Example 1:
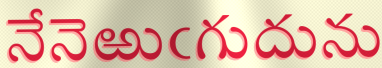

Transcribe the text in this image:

నేనెఱుఁగుదును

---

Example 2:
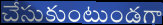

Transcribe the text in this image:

చేసుకుంటుండగా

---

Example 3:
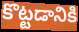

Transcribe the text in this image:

కొట్టడానికి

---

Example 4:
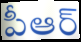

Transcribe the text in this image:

పీఆర్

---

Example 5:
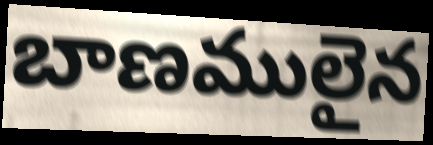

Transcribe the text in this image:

బాణములైన